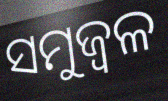
ସମୁଜ୍ୱଳ